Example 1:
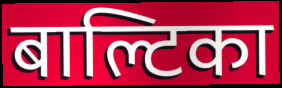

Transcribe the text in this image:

बाल्टिका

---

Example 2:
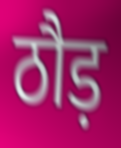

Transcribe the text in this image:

ठौड़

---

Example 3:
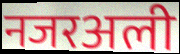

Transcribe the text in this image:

नजरअली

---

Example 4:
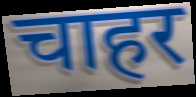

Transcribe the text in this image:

चाहर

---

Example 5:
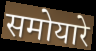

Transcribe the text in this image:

समोयारे